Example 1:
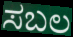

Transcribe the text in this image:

ಸಬಲ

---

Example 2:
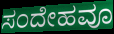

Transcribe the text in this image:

ಸಂದೇಹವೂ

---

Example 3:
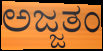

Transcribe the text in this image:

ಅಜ್ಜತಂ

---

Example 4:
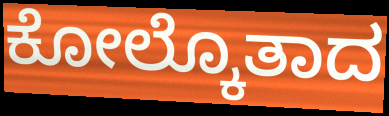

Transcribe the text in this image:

ಕೋಲ್ಕೊತಾದ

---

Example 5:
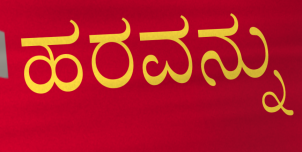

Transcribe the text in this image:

ಹರವನ್ನು